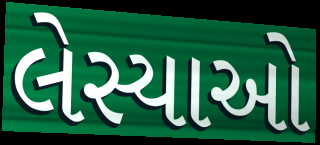
લેસ્યાઓ